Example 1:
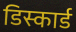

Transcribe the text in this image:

डिस्कार्ड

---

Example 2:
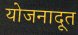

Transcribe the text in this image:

योजनादूत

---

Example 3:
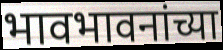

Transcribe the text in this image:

भावभावनांच्या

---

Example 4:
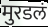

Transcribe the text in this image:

मुरडलं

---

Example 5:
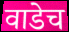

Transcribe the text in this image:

वाडेच